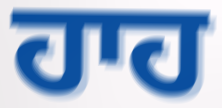
ਹਾਹ